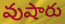
వుషారు